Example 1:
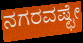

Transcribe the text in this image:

ನಗರವಷ್ಟೇ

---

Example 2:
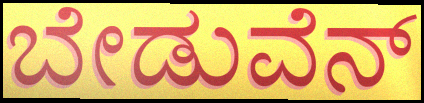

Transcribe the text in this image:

ಬೇಡುವೆನ್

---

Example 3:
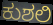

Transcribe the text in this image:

ಕುಶಲಿ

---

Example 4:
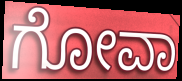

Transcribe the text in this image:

ಗೋವಾ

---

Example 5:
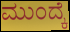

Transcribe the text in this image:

ಮುಂದ್ಕೆ